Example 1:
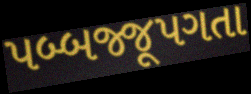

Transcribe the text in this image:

પબ્બજ્જૂપગતા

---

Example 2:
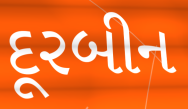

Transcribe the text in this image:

દૂરબીન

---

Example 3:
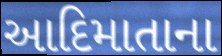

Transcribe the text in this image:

આદિમાતાના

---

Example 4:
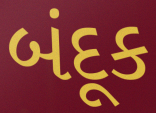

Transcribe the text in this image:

બંદૂક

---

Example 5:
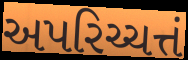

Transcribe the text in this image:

અપરિચ્ચત્તં